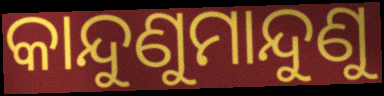
କାନ୍ଦୁଣୁମାନ୍ଦୁଣୁ